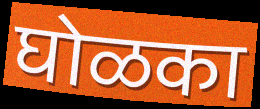
घोळका